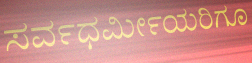
ಸರ್ವಧರ್ಮೀಯರಿಗೂ